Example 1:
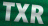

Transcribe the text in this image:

TXR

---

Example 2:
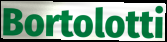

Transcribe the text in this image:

Bortolotti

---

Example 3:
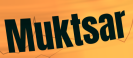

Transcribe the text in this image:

Muktsar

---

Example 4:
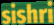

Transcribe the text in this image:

sishri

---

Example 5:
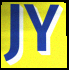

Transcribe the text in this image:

JY